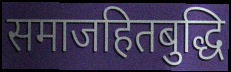
समाजहितबुद्धि